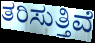
ತರಿಸುತ್ತಿವೆ